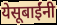
येसूबाईंनी